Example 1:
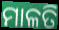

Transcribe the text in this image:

ମାଳତି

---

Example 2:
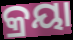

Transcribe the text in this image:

କ୍ରୟା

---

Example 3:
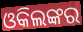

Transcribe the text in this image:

ଓକିଲଙ୍କର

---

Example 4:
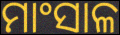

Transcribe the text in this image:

ମାଂସାଳ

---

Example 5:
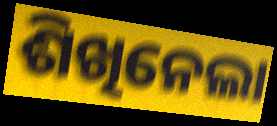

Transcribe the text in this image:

ଶିଖିନେଲା